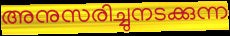
അനുസരിച്ചുനടക്കുന്ന